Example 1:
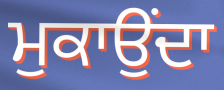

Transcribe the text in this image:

ਮੁਕਾਉਂਦਾ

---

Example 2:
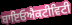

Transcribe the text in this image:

ਬਾਇਓਐਕਟੀਵਿਟੀ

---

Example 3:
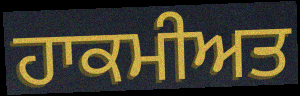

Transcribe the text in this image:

ਹਾਕਮੀਅਤ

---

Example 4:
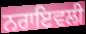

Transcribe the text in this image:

ਨਰਾਇਵਲੀ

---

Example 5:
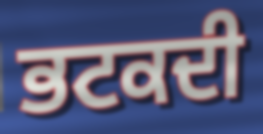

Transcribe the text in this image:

ਭਟਕਦੀ